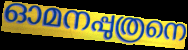
ഓമനപ്പുത്രനെ